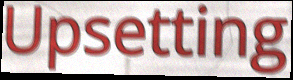
Upsetting